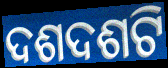
ଦଶଦଶଟି